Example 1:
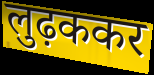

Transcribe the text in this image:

लुढ़ककर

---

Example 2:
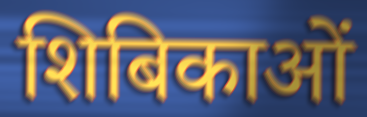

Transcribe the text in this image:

शिबिकाओं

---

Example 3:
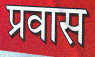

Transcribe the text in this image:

प्रवास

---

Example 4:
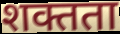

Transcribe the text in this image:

शक्तता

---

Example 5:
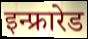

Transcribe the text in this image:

इन्फ्रारेड